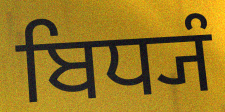
ਬਿਧ੍ਯੰ